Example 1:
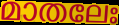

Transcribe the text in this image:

മാതലേഃ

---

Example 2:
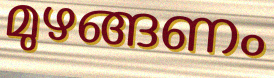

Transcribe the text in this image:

മുഴങ്ങണം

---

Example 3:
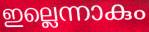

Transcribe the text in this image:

ഇല്ലെന്നാകും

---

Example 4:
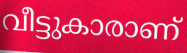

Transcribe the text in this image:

വീട്ടുകാരാണ്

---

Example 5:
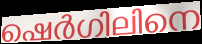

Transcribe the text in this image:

ഷെർഗിലിനെ